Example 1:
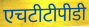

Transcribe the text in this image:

एचटीटीपीडी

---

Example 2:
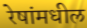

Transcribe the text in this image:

रेषांमधील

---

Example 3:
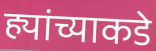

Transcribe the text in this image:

ह्यांच्याकडे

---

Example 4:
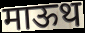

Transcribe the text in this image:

माऊथ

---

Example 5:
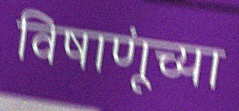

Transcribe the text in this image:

विषाणूंच्या